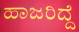
ಹಾಜರಿದ್ದೆ